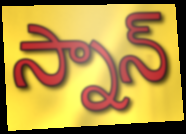
స్నాన్